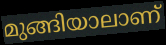
മുങ്ങിയാലാണ്